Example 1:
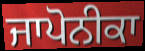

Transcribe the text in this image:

ਜਾਪੋਨੀਕਾ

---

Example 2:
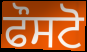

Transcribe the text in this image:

ਫੌਸਟੋ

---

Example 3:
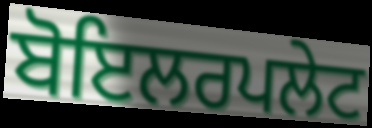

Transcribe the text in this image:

ਬੋਇਲਰਪਲੇਟ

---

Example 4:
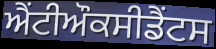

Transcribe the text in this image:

ਐਂਟੀਔਕਸੀਡੈਂਟਸ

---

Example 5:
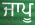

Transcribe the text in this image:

ਜਾਪੂ